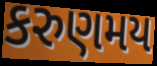
કરુણમય